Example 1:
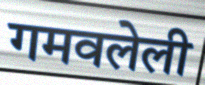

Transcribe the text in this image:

गमवलेली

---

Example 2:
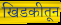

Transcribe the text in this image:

खिडकीतून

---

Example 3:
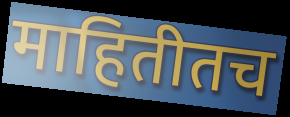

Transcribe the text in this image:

माहितीतच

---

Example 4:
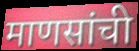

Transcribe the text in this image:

माणसांची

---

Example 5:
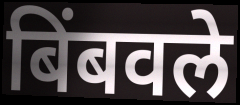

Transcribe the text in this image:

बिंबवले